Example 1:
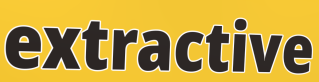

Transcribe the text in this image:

extractive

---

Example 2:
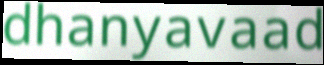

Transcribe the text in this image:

dhanyavaad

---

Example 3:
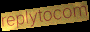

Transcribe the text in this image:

replytocom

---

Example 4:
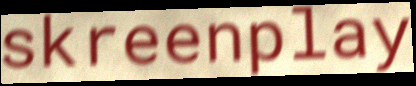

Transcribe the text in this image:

skreenplay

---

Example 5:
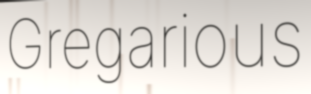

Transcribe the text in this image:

Gregarious